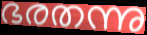
ഭരതന്നു